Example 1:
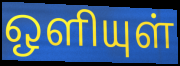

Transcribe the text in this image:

ஒளியுள்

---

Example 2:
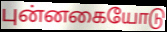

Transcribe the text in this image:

புன்னகையோடு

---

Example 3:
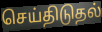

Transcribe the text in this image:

செய்திடுதல்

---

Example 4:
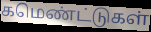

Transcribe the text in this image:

கமெண்ட்டுகள்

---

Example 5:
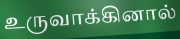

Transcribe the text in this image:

உருவாக்கினால்